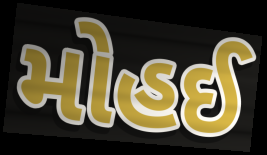
મોહઈ